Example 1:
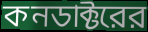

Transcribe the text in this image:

কনডাক্টরের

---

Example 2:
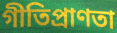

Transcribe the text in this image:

গীতিপ্রাণতা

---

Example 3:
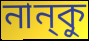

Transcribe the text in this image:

নান্‌কু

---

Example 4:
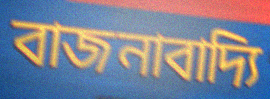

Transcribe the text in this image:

বাজনাবাদ্যি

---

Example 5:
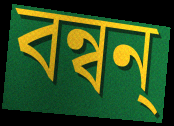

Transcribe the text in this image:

বন্বন্